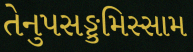
તેનુપસઙ્કમિસ્સામ